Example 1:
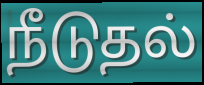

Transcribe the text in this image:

நீடுதல்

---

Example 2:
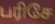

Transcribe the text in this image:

பரிசே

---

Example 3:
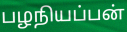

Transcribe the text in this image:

பழநியப்பன்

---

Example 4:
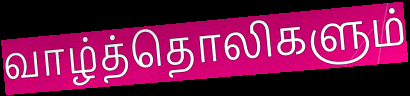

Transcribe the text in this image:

வாழ்த்தொலிகளும்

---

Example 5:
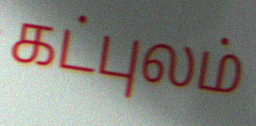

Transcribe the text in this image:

கட்புலம்